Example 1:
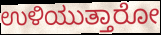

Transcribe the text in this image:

ಉಳಿಯುತ್ತಾರೋ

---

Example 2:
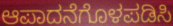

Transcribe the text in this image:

ಆಪಾದನೆಗೊಳಪಡಿಸಿ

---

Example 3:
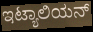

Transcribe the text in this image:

ಇಟ್ಯಾಲಿಯನ್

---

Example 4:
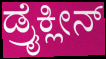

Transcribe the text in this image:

ಡ್ರೈಕ್ಲೀನ್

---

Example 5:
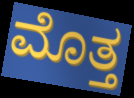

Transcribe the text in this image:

ಮೊತ್ತ